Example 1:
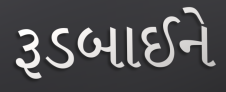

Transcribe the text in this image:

રૂડબાઈને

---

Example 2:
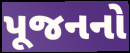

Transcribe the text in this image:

પૂજનનો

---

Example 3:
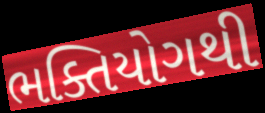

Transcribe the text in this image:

ભક્તિયોગથી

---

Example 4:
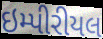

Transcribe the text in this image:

ઇમ્પીરીયલ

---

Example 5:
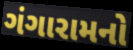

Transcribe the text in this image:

ગંગારામનો